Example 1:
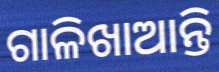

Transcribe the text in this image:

ଗାଳିଖାଆନ୍ତି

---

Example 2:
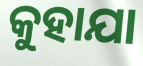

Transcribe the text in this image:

କୁହାଯା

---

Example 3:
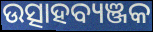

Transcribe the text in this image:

ଉତ୍ସାହବ୍ୟଞ୍ଜକ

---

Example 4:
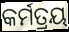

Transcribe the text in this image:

କର୍ମତ୍ରୟ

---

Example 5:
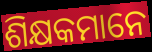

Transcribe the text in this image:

ଶିକ୍ଷକମାନେ